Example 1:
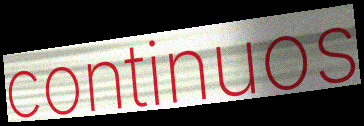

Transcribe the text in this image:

continuos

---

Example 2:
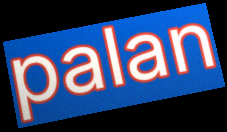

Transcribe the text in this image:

palan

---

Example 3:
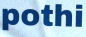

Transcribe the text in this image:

pothi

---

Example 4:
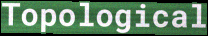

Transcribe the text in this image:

Topological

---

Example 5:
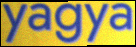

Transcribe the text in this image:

yagya